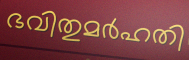
ഭവിതുമർഹതി